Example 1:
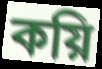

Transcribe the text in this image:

কয়ি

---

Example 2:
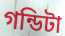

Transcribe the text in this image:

গন্ডিটা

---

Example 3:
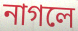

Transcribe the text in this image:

নাগলে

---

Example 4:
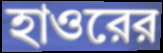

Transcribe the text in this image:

হাওরের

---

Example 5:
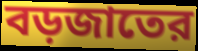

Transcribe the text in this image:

বড়জাতের